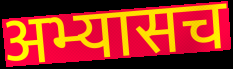
अभ्यासच